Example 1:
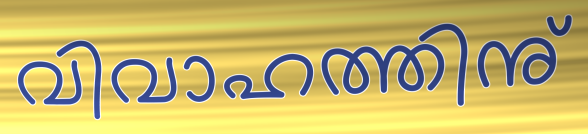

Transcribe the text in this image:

വിവാഹത്തിനു്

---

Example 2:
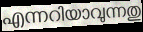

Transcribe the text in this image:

എന്നറിയാവുന്നതു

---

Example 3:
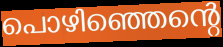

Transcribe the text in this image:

പൊഴിഞ്ഞെന്റെ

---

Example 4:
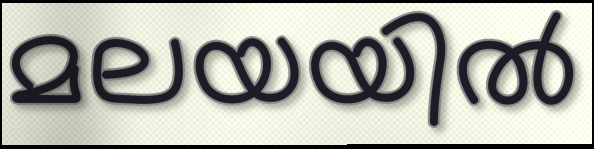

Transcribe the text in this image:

മലയയിൽ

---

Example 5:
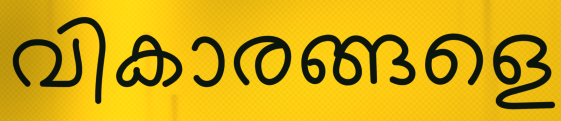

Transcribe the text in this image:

വികാരങ്ങളെ